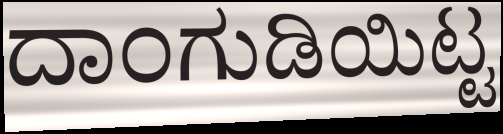
ದಾಂಗುಡಿಯಿಟ್ಟ